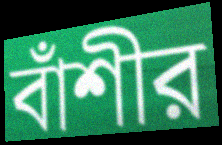
বাঁশীর